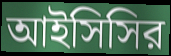
আইসিসির